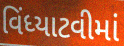
વિંધ્યાટવીમાં